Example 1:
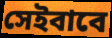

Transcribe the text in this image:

সেইবাবে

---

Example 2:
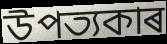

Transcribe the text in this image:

উপত্যকাৰ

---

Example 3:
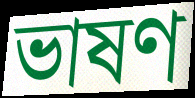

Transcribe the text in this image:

ভাষণ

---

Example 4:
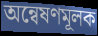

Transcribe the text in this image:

অন্বেষণমূলক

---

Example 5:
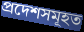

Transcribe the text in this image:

প্ৰদেশসমূহত